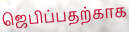
ஜெபிப்பதற்காக